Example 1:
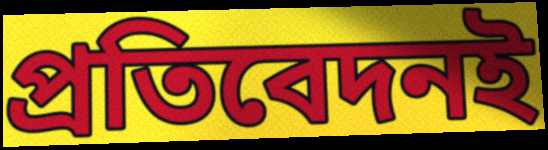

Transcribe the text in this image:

প্রতিবেদনই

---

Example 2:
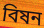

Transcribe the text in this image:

বিষন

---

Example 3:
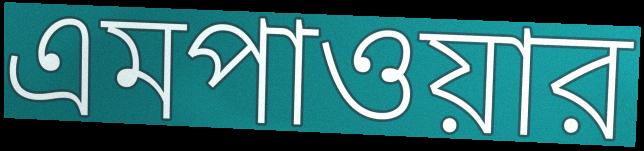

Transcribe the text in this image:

এমপাওয়ার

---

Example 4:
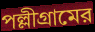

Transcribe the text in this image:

পল্লীগ্রামের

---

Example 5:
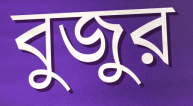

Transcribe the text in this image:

বুজুর